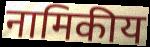
नामिकीय